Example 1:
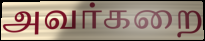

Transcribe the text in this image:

அவர்கறை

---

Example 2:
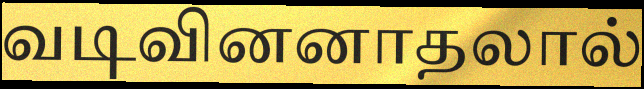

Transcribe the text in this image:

வடிவினனாதலால்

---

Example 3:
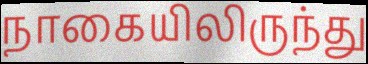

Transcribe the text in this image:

நாகையிலிருந்து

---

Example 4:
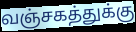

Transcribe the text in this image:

வஞ்சகத்துக்கு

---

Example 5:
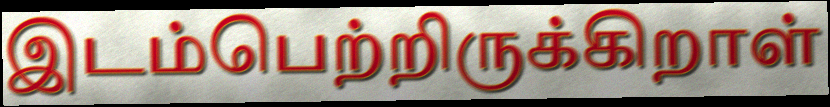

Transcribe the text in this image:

இடம்பெற்றிருக்கிறாள்